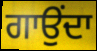
ਗਾਉਂਦਾ